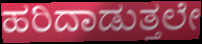
ಹರಿದಾಡುತ್ತಲೇ